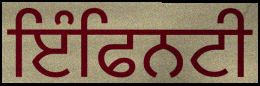
ਇੰਫਿਨਟੀ